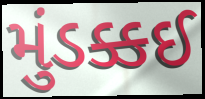
મુંડક્કઈ